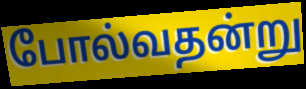
போல்வதன்று